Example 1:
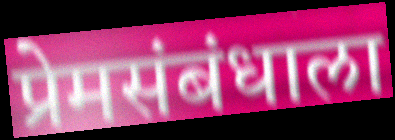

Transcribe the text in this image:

प्रेमसंबंधाला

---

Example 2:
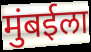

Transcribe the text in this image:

मुंबईला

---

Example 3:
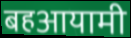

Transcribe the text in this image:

बहआयामी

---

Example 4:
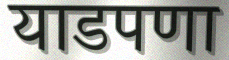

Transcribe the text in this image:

याडपणा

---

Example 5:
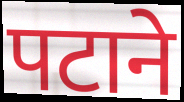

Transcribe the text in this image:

पटाने